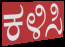
ಕಳಿಸಿ